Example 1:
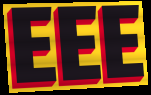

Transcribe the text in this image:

EEE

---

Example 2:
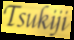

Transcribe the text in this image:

Tsukiji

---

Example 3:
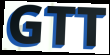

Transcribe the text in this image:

GTT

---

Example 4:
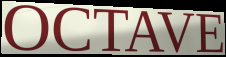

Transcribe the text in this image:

OCTAVE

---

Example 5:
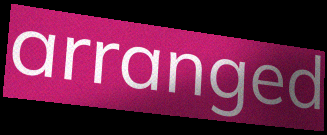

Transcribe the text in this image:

arranged